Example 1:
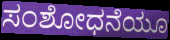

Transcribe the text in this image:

ಸಂಶೋಧನೆಯೂ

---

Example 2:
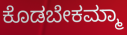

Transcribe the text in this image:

ಕೊಡಬೇಕಮ್ಮಾ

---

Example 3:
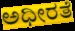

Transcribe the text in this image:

ಅಧೀರತೆ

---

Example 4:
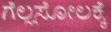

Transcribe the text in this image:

ಗೆಲ್ಲಸೋಲಕ್ಕೆ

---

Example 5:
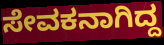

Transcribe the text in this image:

ಸೇವಕನಾಗಿದ್ದ